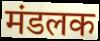
मंडलक